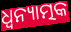
ଧ୍ୱନ୍ୟାତ୍ମକ